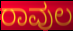
ರಾವುಲ